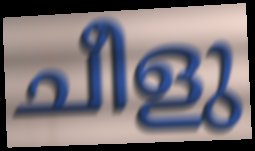
ചീളു